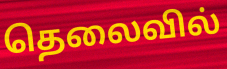
தெலைவில்